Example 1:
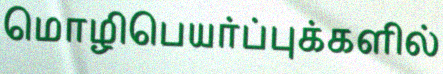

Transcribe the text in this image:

மொழிபெயர்ப்புக்களில்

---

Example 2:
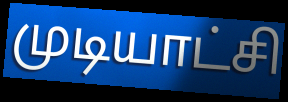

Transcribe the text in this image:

முடியாட்சி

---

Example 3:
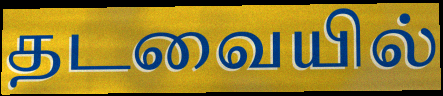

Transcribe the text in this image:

தடவையில்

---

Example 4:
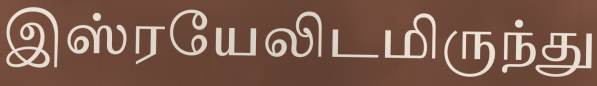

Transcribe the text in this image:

இஸ்ரயேலிடமிருந்து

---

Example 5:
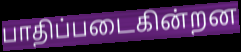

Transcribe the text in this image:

பாதிப்படைகின்றன